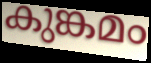
കുങ്കമം